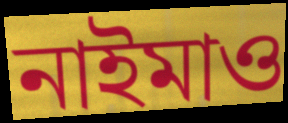
নাইমাও